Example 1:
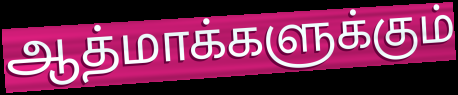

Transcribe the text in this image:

ஆத்மாக்களுக்கும்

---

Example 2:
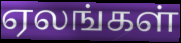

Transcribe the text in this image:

ஏலங்கள்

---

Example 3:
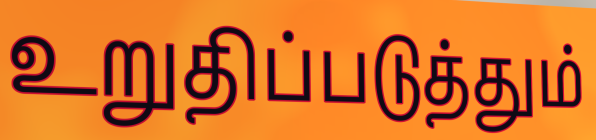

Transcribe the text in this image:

உறுதிப்படுத்தும்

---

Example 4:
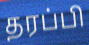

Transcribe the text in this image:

தரப்பி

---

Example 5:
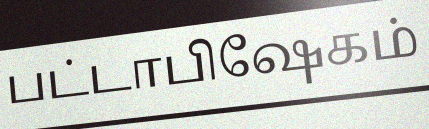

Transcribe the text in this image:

பட்டாபிஷேகம்